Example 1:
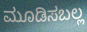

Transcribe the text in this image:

ಮೂಡಿಸಬಲ್ಲ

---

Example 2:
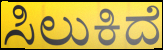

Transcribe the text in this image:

ಸಿಲುಕಿದೆ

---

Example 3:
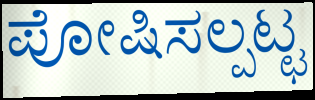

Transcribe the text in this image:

ಪೋಷಿಸಲ್ಪಟ್ಟ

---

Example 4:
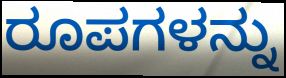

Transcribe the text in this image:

ರೂಪಗಳನ್ನು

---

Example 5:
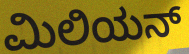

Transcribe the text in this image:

ಮಿಲಿಯನ್